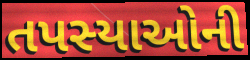
તપસ્યાઓની